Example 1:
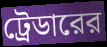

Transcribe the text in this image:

ট্রেডারের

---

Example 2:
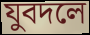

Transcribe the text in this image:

যুবদলে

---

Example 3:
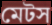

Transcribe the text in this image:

মেটস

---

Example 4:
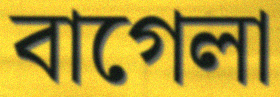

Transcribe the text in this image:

বাগেলা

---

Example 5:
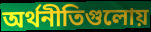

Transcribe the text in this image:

অর্থনীতিগুলোয়